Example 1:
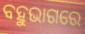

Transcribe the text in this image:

ବହୁଭାଗରେ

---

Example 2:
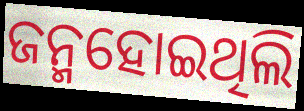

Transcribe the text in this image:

ଜନ୍ମହୋଇଥିଲି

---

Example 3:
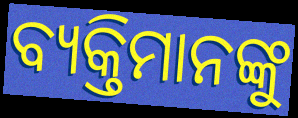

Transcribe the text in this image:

ବ୍ଯକ୍ତିମାନଙ୍କୁ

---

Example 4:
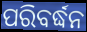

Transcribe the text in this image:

ପରିବର୍ଦ୍ଧନ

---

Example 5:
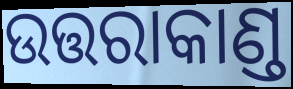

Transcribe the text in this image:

ଉତ୍ତରାକାଣ୍ଡ